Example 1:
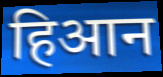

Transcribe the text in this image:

हिआन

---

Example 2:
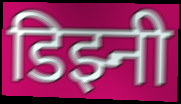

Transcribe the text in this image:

डिझ्नी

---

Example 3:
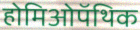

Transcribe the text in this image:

होमिओपॅथिक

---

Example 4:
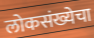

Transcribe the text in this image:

लोकसंख्येचा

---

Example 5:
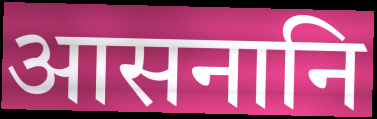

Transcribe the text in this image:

आसनानि